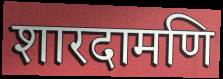
शारदामणि